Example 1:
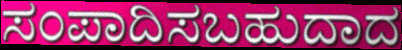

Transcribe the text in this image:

ಸಂಪಾದಿಸಬಹುದಾದ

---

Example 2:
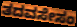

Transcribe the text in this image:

ತದವಸೇಸಂ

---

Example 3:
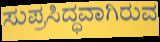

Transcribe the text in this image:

ಸುಪ್ರಸಿದ್ಧವಾಗಿರುವ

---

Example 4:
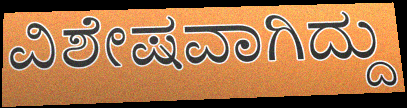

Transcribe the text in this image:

ವಿಶೇಷವಾಗಿದ್ದು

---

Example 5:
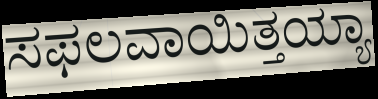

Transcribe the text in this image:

ಸಫಲವಾಯಿತ್ತಯ್ಯಾ